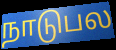
நாடுபல